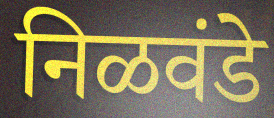
निळवंडे